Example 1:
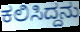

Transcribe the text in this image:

ಕಲಿಸಿದ್ದನು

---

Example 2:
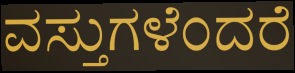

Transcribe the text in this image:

ವಸ್ತುಗಳೆಂದರೆ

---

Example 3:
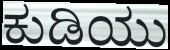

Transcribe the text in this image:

ಕುಡಿಯು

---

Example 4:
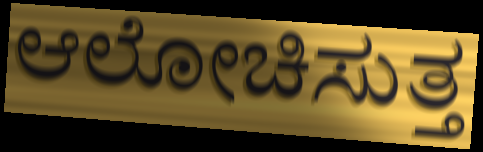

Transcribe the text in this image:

ಆಲೋಚಿಸುತ್ತ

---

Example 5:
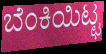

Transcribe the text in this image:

ಬೆಂಕಿಯಿಟ್ಟ